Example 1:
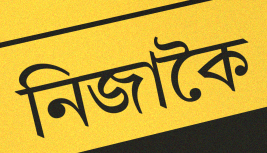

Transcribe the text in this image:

নিজাকৈ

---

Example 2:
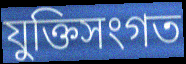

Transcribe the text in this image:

যুক্তিসংগত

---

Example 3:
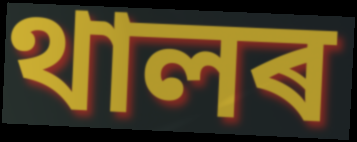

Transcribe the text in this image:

থালৰ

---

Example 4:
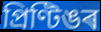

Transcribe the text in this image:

প্ৰিণ্টিঙৰ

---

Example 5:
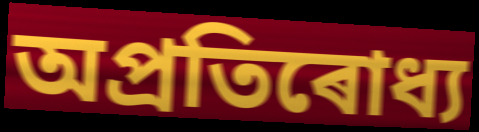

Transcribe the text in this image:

অপ্ৰতিৰোধ্য